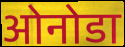
ओनोडा